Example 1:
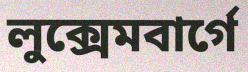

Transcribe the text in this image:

লুক্সেমবার্গে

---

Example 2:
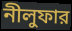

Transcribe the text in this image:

নীলুফার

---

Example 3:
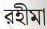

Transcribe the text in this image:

রহীমা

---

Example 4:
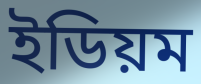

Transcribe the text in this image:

ইডিয়ম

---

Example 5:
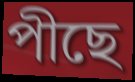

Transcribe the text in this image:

পীছে